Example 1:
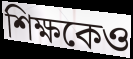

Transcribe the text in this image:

শিক্ষকেও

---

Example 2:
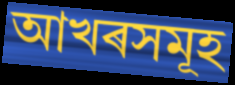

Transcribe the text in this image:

আখৰসমূহ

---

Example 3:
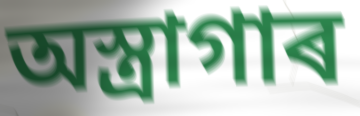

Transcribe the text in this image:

অস্ত্ৰাগাৰ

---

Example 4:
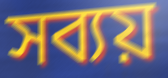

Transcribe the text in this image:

সব্যয়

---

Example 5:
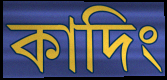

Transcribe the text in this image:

কাদিং